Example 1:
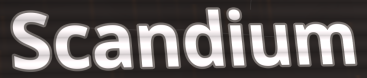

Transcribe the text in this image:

Scandium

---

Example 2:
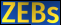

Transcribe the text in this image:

ZEBs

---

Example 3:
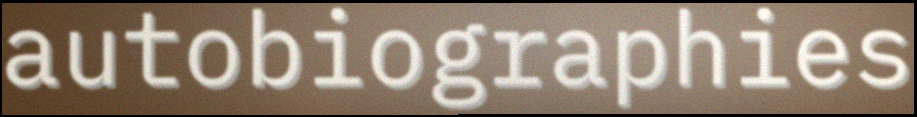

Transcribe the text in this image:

autobiographies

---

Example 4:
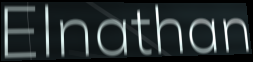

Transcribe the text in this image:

Elnathan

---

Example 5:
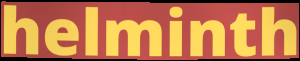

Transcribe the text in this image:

helminth